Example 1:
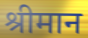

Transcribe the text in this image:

श्रीमान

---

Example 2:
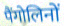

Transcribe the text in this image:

पैंगोलिनों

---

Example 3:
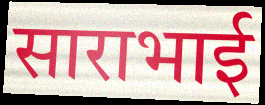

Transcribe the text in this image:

साराभाई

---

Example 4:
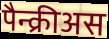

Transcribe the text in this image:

पैन्क्रीअस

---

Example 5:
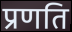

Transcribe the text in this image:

प्रणति